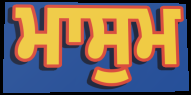
ਮਾਸੁਮ